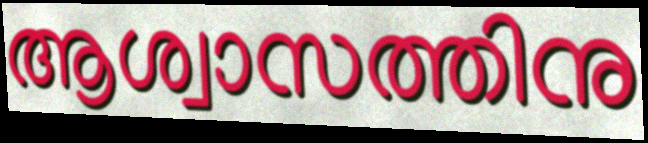
ആശ്വാസത്തിനു